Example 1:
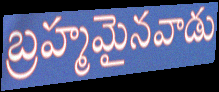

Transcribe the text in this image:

బ్రహ్మమైనవాడు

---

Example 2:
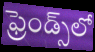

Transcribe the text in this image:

ఫ్రెండ్స్‌లో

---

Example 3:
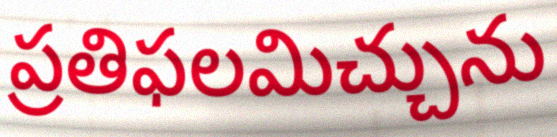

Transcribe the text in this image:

ప్రతిఫలమిచ్చును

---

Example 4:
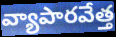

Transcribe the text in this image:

వ్యాపారవేత్త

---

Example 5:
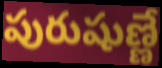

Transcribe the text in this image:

పురుషుణ్ణే